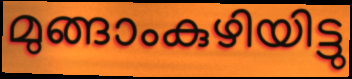
മുങ്ങാംകുഴിയിട്ടു